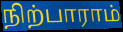
நிற்பாராம்